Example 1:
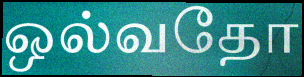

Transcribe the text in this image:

ஒல்வதோ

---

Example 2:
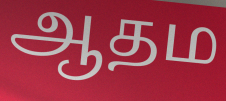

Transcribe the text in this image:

ஆதம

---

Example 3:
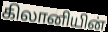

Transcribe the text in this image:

கிலானியின்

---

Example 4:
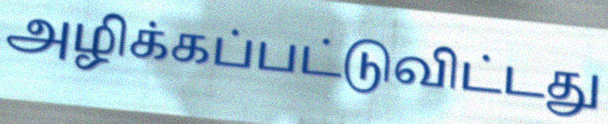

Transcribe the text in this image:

அழிக்கப்பட்டுவிட்டது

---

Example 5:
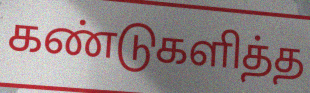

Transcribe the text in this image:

கண்டுகளித்த